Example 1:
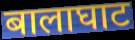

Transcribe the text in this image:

बालाघाट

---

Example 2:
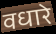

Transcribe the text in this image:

वधारे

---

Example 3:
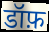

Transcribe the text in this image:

डॉफ़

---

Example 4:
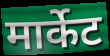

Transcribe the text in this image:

मार्केट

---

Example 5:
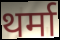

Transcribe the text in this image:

थर्मा